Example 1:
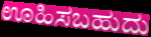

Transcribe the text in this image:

ಊಹಿಸಬಹುದು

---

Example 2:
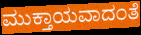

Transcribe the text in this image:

ಮುಕ್ತಾಯವಾದಂತೆ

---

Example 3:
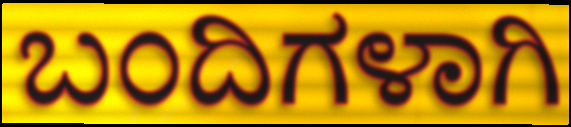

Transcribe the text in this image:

ಬಂದಿಗಳಾಗಿ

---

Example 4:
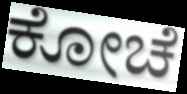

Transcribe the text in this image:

ಕೋಚೆ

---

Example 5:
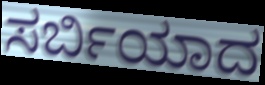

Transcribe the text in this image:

ಸರ್ಬಿಯಾದ